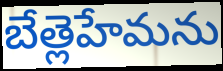
బేత్లెహేమను